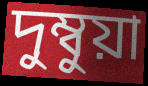
দুম্বুয়া